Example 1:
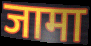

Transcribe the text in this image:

जामा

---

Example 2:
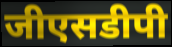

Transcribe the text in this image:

जीएसडीपी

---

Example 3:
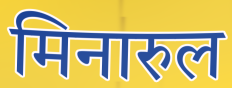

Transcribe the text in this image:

मिनारुल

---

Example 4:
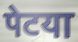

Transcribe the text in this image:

पेटया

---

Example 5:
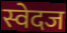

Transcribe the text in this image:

स्वेदज